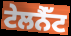
ਟੇਲਨੈੱਟ